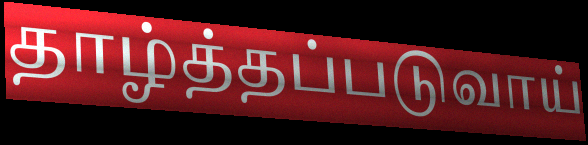
தாழ்த்தப்படுவாய்